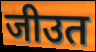
जीउत